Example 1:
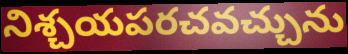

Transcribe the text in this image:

నిశ్చయపరచవచ్చును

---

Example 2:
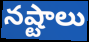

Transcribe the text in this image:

నష్టాలు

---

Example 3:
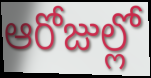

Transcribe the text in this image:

ఆరోజుల్లో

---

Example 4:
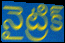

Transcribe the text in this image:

నైట్రిక్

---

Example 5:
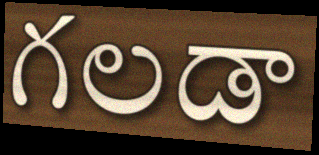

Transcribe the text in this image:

గలడా